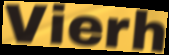
Vierh